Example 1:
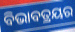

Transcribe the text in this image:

ବିଭାବତ୍ରୟର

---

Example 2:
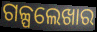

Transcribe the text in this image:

ଗଳ୍ପଲେଖାର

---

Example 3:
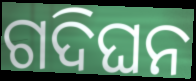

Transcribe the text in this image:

ଗଦିଘନ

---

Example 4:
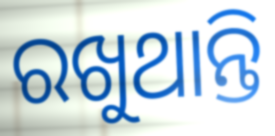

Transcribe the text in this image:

ରଖୁଥାନ୍ତି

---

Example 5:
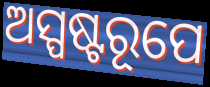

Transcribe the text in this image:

ଅସ୍ପଷ୍ଟରୂପେ